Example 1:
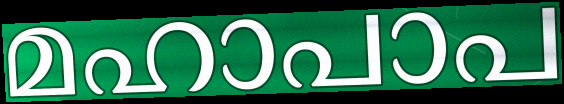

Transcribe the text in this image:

മഹാപാപ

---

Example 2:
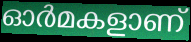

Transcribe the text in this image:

ഓർമകളാണ്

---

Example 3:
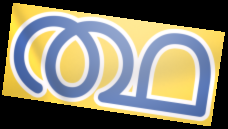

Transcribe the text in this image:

ത്ഥ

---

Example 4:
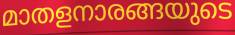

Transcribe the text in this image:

മാതളനാരങ്ങയുടെ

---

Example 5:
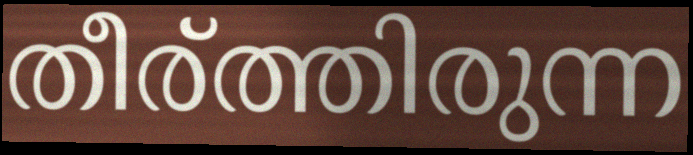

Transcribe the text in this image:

തീര്ത്തിരുന്ന